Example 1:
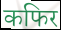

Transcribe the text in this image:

कफिर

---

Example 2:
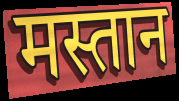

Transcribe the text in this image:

मस्तान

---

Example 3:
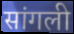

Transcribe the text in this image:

सांगली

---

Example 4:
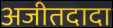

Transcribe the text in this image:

अजीतदादा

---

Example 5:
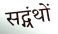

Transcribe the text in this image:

सद्ग्रंथों